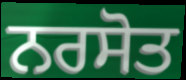
ਨਰਸੋਤ